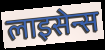
लाइसेन्स